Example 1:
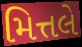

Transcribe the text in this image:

મિત્તલે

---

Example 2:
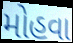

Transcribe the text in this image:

મોહવા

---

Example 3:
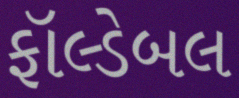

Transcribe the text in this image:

ફૉલ્ડેબલ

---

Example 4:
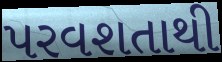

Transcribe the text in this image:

પરવશતાથી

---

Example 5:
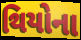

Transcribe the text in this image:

થિયોના